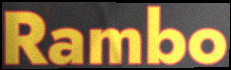
Rambo